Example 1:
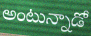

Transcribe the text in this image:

అంటున్నాడో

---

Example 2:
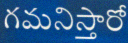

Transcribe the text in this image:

గమనిస్తారో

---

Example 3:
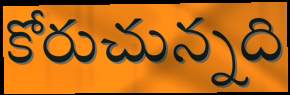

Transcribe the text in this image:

కోరుచున్నది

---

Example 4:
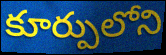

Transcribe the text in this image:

కూర్పులోని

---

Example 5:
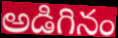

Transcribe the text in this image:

అడిగినం